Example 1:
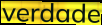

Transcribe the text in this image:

verdade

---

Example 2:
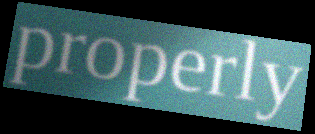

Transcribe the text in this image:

properly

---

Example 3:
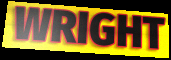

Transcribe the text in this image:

WRIGHT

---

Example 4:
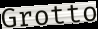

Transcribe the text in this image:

Grotto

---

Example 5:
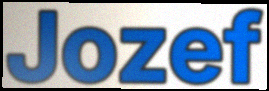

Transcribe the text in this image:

Jozef